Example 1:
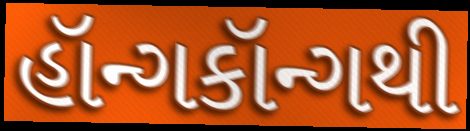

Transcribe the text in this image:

હૉન્ગકૉન્ગથી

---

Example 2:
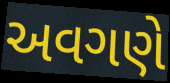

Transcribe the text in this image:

અવગણે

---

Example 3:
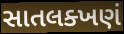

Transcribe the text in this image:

સાતલક્ખણં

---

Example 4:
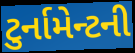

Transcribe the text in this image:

ટુર્નામેન્ટની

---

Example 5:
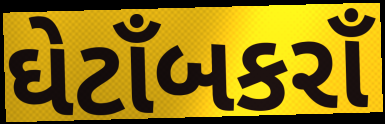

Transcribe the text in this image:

ઘેટાઁબકરાઁ